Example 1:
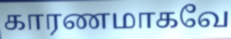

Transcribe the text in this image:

காரணமாகவே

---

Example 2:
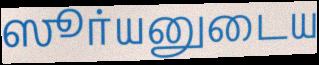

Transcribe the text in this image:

ஸூர்யனுடைய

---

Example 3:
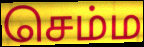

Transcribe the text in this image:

செம்ம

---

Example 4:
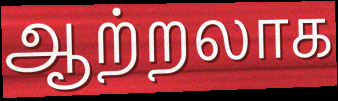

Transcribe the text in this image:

ஆற்றலாக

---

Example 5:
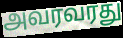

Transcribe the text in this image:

அவரவரது